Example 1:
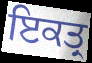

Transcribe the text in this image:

ਇਕਤ੍ਰ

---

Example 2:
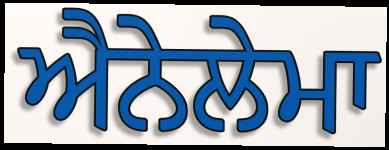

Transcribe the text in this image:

ਐਨੇਲੇਮਾ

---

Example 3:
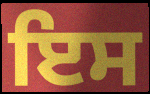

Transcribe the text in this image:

ਇਸ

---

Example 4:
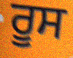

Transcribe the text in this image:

ਰੂਸ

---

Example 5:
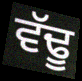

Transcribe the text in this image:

ਵੱਢੂ